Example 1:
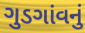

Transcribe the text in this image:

ગુડગાંવનું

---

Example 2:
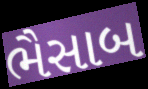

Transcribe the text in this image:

ભૈસાબ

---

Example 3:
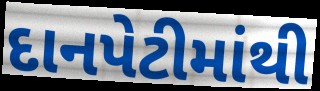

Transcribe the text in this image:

દાનપેટીમાંથી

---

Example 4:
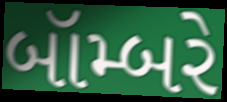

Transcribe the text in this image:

બૉમ્બરે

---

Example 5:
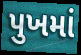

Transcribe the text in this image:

પુખમાં